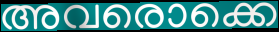
അവരൊക്കെ